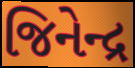
જિનેન્દ્ર